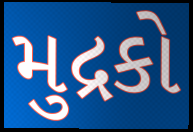
મુદ્રકો